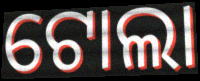
ଟୋଲା